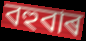
বহুবাৰ